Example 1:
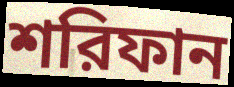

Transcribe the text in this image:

শরিফান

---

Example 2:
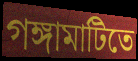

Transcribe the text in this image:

গঙ্গামাটিতে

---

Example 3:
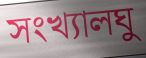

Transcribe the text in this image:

সংখ্যালঘু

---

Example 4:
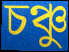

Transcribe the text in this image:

চঞ্চু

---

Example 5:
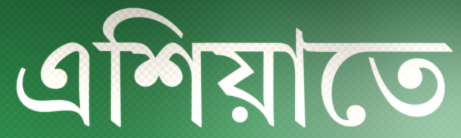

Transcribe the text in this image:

এশিয়াতে